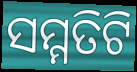
ସମ୍ମତିଟି